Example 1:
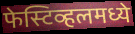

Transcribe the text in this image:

फेस्टिव्हलमध्ये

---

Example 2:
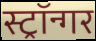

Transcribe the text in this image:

स्ट्रॉन्गर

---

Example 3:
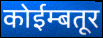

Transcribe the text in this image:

कोईम्बतूर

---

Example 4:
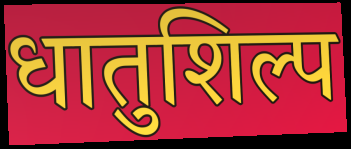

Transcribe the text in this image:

धातुशिल्प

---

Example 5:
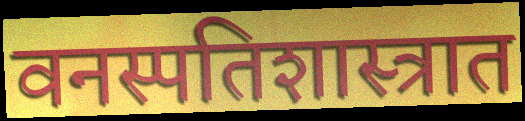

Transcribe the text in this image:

वनस्पतिशास्त्रात